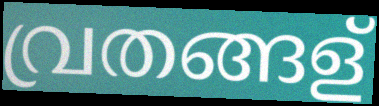
വ്രതങ്ങള്